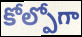
కోల్పోగా